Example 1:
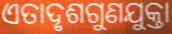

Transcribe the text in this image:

ଏତାଦୃଶଗୁଣଯୁକ୍ତା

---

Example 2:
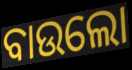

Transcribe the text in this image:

ବାଉଲୋ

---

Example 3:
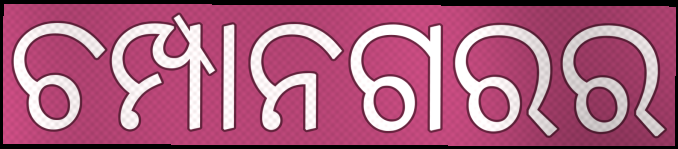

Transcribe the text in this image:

ଚମ୍ପାନଗରର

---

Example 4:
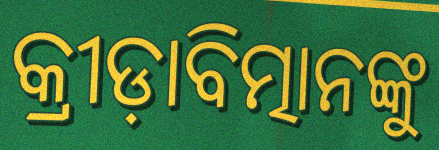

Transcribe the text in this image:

କ୍ରୀଡ଼ାବିତ୍ମାନଙ୍କୁ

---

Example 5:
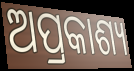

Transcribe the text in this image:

ଅପ୍ରକାଶ୍ୟ